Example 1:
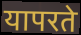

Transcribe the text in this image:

यापरते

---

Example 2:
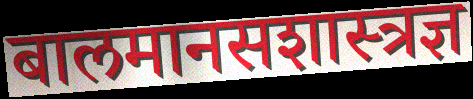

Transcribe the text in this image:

बालमानसशास्त्रज्ञ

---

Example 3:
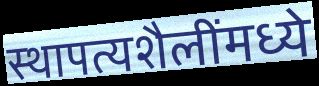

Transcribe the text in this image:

स्थापत्यशैलींमध्ये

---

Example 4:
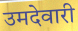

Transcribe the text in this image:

उमदेवारी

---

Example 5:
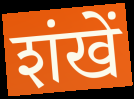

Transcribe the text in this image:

शंखें